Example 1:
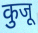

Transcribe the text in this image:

कुजू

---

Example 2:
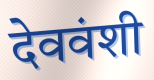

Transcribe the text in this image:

देववंशी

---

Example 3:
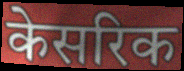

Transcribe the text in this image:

केसरिक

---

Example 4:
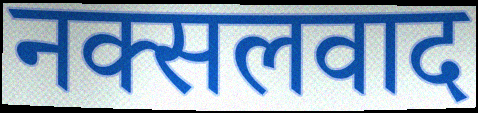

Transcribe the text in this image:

नक्सलवाद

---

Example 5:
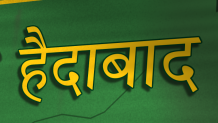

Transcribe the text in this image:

हैदाबाद